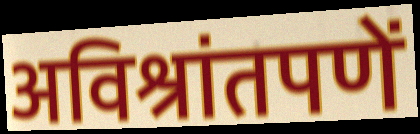
अविश्रांतपणें